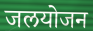
जलयोजन